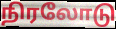
நிரலோடு